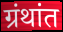
ग्रंथांत